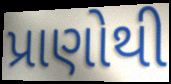
પ્રાણોથી